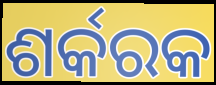
ଶର୍କରକ